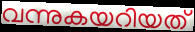
വന്നുകയറിയത്